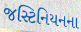
જસ્ટિનિયનના